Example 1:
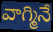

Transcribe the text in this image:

వాగ్మినే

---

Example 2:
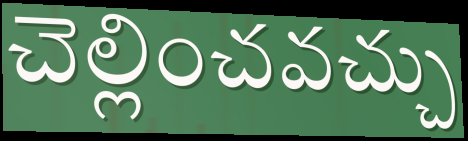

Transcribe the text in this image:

చెల్లించవచ్చు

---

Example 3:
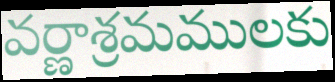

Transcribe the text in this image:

వర్ణాశ్రమములకు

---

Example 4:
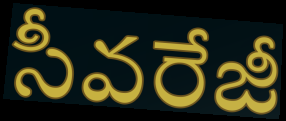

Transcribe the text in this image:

సీవరేజీ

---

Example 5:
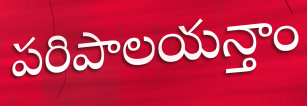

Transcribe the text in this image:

పరిపాలయన్తాం